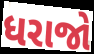
ધરાજો